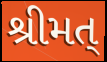
શ્રીમત્